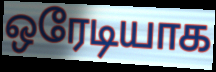
ஒரேடியாக